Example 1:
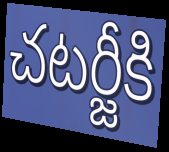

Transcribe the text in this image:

చటర్జీకి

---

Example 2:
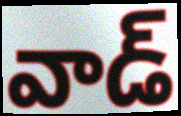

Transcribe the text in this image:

వాడ్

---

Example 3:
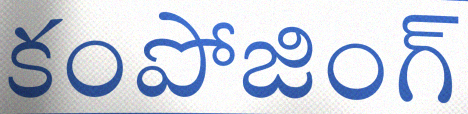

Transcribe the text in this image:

కంపోజింగ్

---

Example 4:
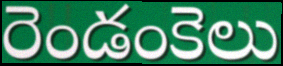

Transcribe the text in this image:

రెండంకెలు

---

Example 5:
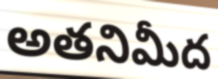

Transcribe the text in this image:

అతనిమీద